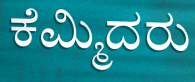
ಕೆಮ್ಮಿದರು